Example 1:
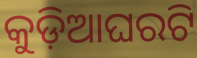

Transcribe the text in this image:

କୁଡ଼ିଆଘରଟି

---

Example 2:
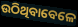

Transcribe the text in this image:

ଉଠିଥିବାବେଳେ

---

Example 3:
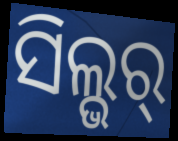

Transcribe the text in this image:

ସିଲ୍ଭର୍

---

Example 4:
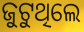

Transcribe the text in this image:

ଜୁଟୁଥିଲେ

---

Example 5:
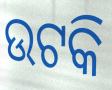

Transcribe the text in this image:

ଉଟକି